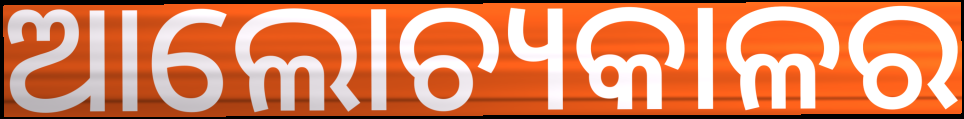
ଆଲୋଚ୍ୟକାଳର